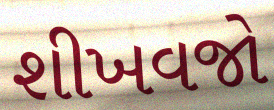
શીખવજો